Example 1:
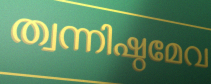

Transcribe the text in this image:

ത്വന്നിഷ്ഠമേവ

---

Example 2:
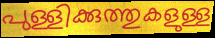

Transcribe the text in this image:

പുള്ളിക്കുത്തുകളുള്ള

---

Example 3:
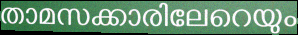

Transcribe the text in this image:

താമസക്കാരിലേറെയും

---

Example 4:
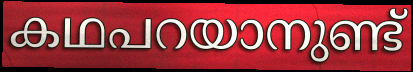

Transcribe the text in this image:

കഥപറയാനുണ്ട്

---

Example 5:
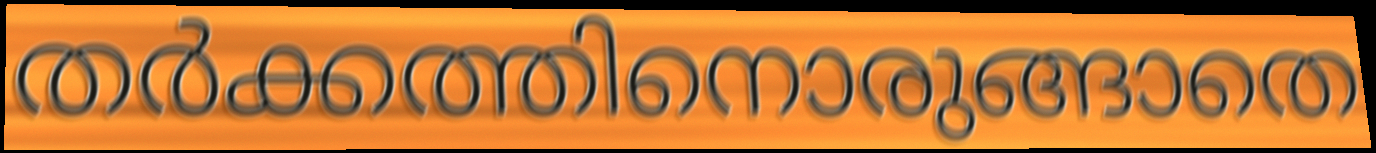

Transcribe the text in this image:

തർക്കത്തിനൊരുങ്ങാതെ